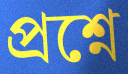
প্ৰশ্নে